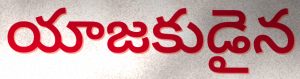
యాజకుడైన